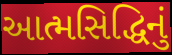
આત્મસિદ્ધિનું